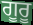
ਗੂਰੂ